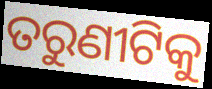
ତରୁଣୀଟିକୁ